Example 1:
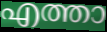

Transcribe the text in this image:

എത്താ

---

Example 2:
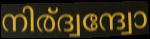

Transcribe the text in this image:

നിര്ദ്വന്ദ്വോ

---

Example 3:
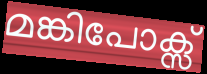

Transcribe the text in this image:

മങ്കിപോക്സ്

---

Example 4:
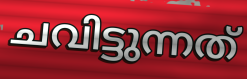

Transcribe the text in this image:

ചവിട്ടുന്നത്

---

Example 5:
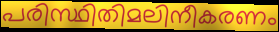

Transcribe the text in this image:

പരിസ്ഥിതിമലിനീകരണം